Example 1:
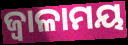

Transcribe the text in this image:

ଜ୍ୱାଳାମୟ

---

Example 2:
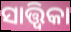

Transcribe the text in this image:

ସାତ୍ତ୍ୱିକା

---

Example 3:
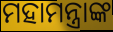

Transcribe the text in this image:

ମହାମନ୍ତ୍ରାଙ୍କ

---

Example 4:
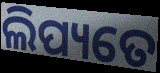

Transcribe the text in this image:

ଲିପ୍ୟତେ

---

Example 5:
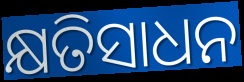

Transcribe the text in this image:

କ୍ଷତିସାଧନ